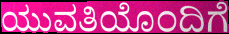
ಯುವತಿಯೊಂದಿಗೆ